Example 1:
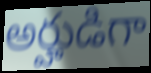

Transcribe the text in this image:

అర్హుడిగా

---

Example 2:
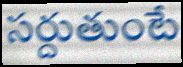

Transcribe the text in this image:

సర్దుతుంటే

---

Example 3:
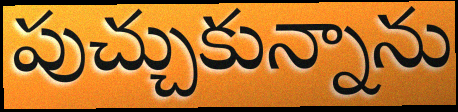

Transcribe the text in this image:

పుచ్చుకున్నాను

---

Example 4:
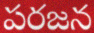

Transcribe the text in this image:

పరజన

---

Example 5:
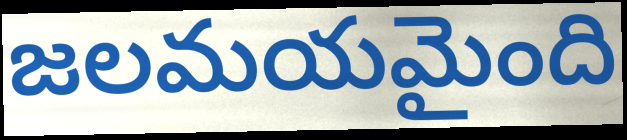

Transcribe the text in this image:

జలమయమైంది